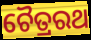
ଚୈତ୍ରରଥ